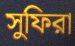
সুফিরা